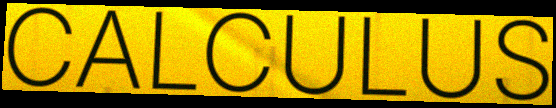
CALCULUS